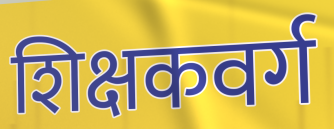
शिक्षकवर्ग